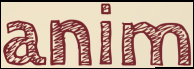
anim